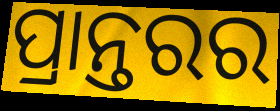
ପ୍ରାନ୍ତରର